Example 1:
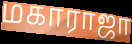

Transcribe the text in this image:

மகாராஜா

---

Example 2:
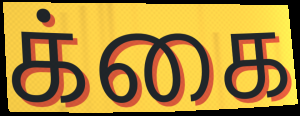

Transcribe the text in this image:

க்கை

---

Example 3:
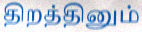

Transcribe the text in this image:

திறத்தினும்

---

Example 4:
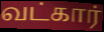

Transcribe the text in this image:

வட்கார்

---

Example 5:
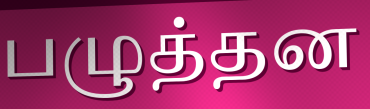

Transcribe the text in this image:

பழுத்தன